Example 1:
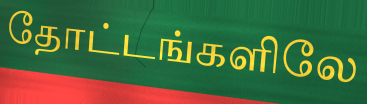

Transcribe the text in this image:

தோட்டங்களிலே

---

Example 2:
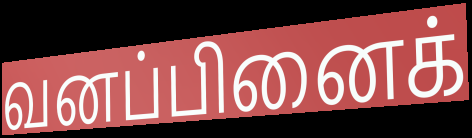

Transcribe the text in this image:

வனப்பினைக்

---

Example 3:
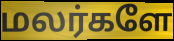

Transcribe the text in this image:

மலர்களே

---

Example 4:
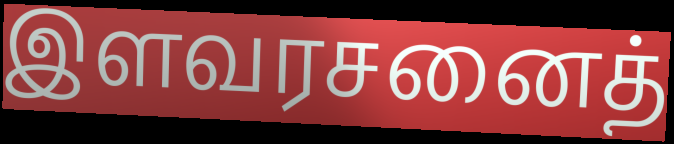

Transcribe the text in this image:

இளவரசனைத்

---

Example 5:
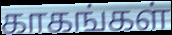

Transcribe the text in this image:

காகங்கள்